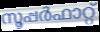
സൂപ്പർഫാറ്റ്